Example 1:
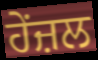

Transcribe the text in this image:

ਹੇਂਜ਼ਲ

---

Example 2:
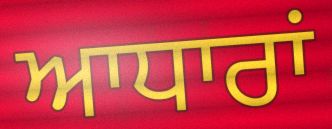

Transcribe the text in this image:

ਆਧਾਰਾਂ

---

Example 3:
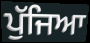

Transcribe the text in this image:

ਪੁੱਜਿਆ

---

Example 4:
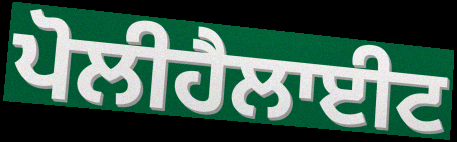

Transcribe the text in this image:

ਪੋਲੀਹੈਲਾਈਟ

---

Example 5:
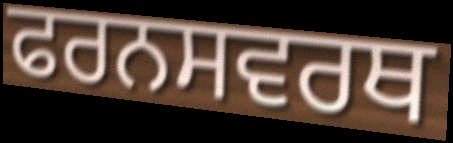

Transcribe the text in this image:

ਫਰਨਸਵਰਥ